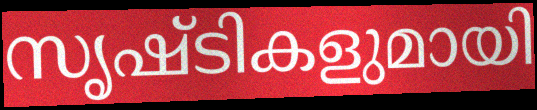
സൃഷ്ടികളുമായി